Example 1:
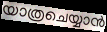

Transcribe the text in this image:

യാത്രചെയ്യാൻ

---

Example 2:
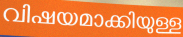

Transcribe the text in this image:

വിഷയമാക്കിയുള്ള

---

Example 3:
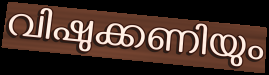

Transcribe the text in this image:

വിഷുക്കണിയും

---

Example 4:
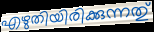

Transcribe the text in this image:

എഴുതിയിരിക്കുന്നതു്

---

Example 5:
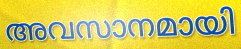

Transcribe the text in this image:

അവസാനമായി